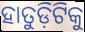
ହାତୁଡ଼ିଟିକୁ